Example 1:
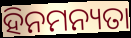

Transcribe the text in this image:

ହିନମନ୍ୟତା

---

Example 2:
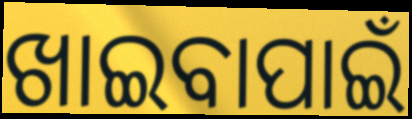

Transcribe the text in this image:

ଖାଇବାପାଇଁ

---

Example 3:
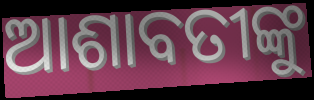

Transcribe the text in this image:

ଆଶାବତୀଙ୍କୁ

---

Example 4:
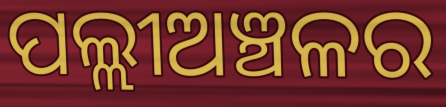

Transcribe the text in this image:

ପଲ୍ଲୀଅଞ୍ଚଳର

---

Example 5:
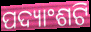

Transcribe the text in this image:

ପଦ୍ୟାଂଶଟି